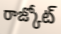
రాజ్కోట్